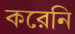
করেনি